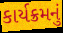
કાર્યક્રમનું